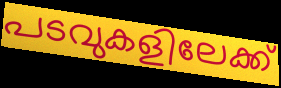
പടവുകളിലേക്ക്